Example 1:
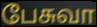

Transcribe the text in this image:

பேசுவா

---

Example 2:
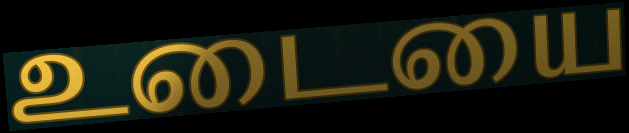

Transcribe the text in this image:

உடையை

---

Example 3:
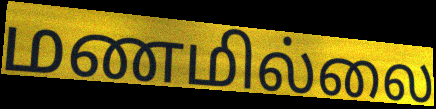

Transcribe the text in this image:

மணமில்லை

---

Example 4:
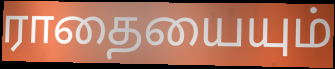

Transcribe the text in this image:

ராதையையும்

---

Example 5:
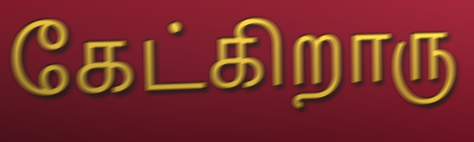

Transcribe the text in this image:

கேட்கிறாரு